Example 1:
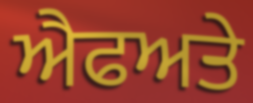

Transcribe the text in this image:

ਐਫਅਤੇ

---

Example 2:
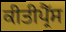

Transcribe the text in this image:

ਕੀਤੀਪ੍ਰੈੱਸ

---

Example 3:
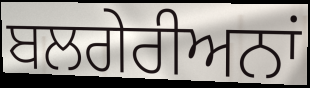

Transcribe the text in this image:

ਬਲਗੇਰੀਅਨਾਂ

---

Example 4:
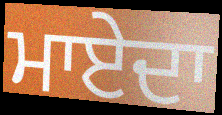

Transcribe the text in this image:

ਮਾਏਦਾ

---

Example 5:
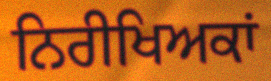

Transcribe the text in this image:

ਨਿਰੀਖਿਅਕਾਂ